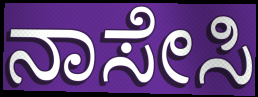
ನಾಸೇಸಿ